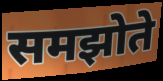
समझोते